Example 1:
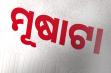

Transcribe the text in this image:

ମୂଷାଟା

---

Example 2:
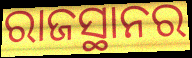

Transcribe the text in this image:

ରାଜସ୍ଥାନର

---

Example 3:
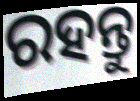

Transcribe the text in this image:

ରହନ୍ତୁ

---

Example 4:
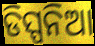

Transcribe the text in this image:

ଡିସ୍ପନିଆ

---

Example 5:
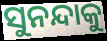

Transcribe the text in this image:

ସୁନନ୍ଦାକୁ